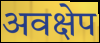
अवक्षेप